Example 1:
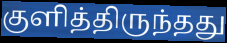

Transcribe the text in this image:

குளித்திருந்தது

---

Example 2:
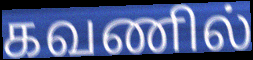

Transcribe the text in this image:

கவணில்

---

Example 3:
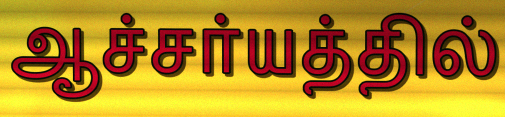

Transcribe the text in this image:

ஆச்சர்யத்தில்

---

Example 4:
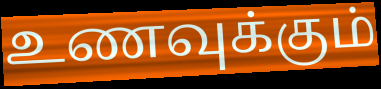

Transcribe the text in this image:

உணவுக்கும்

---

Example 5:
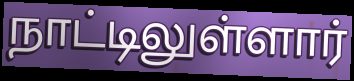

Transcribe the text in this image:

நாட்டிலுள்ளார்